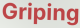
Griping